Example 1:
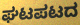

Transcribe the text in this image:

ಘಟಪಟದ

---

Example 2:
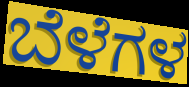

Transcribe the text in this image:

ಬೆಳೆಗಳ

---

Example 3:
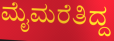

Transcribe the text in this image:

ಮೈಮರೆತಿದ್ದ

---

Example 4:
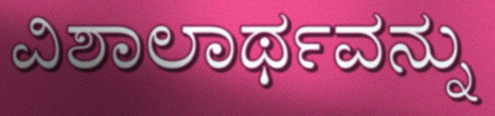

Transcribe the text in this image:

ವಿಶಾಲಾರ್ಥವನ್ನು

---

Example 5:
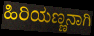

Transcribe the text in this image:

ಹಿರಿಯಣ್ಣನಾಗಿ